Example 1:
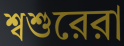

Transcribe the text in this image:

শ্বশুরেরা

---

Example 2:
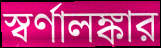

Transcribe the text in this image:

স্বর্ণালঙ্কার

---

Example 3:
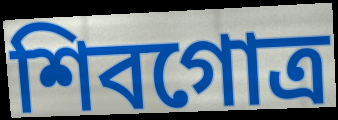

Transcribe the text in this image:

শিবগোত্র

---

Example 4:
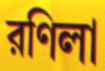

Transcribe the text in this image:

রণিলা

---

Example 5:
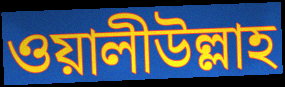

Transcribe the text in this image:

ওয়ালীউল্লাহ